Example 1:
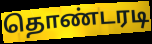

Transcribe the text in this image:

தொண்டரடி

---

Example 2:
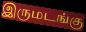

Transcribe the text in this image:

இருமடங்கு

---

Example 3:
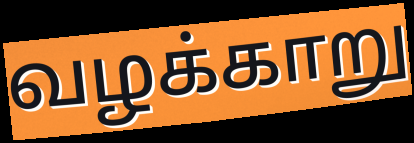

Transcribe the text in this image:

வழக்காறு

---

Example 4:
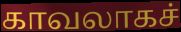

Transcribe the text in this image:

காவலாகச்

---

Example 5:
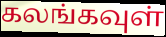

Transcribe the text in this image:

கலங்கவுள்